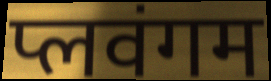
प्लवंगम